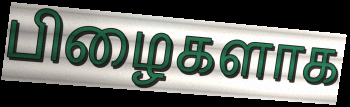
பிழைகளாக